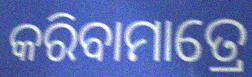
କରିବାମାତ୍ରେ